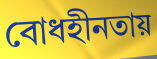
বোধহীনতায়